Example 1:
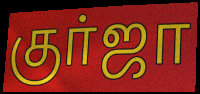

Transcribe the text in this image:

குர்ஜா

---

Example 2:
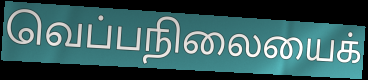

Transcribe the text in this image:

வெப்பநிலையைக்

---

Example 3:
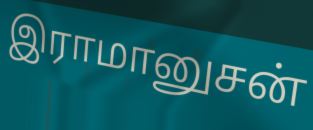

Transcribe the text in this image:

இராமானுசன்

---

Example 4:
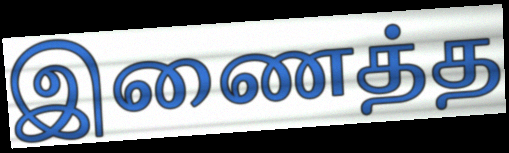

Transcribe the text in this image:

இணைத்த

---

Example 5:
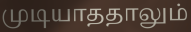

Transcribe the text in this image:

முடியாததாலும்